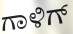
ಗಾಳಿಗ್